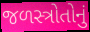
જળસ્ત્રોતોનું